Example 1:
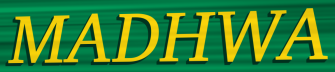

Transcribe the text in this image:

MADHWA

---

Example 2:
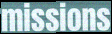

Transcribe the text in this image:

missions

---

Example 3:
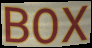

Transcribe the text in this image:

BOX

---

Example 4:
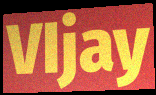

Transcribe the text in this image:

VIjay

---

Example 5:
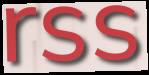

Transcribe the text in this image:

rss